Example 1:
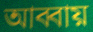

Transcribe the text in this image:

আব্বায়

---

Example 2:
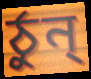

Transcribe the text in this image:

ঠুন্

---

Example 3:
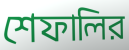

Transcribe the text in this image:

শেফালির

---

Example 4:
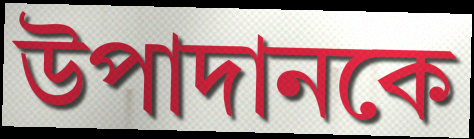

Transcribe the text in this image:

উপাদানকে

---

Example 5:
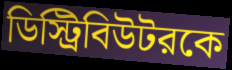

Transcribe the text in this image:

ডিস্ট্রিবিউটরকে